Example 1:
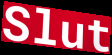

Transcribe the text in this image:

Slut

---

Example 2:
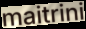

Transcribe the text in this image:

maitrini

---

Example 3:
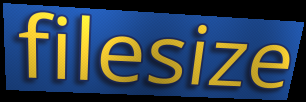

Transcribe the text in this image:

filesize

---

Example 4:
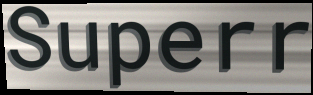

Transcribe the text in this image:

Superr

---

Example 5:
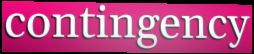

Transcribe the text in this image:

contingency